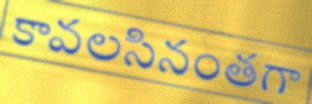
కావలసినంతగా